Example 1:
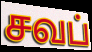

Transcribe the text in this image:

சவப்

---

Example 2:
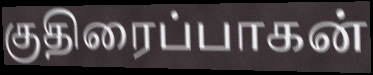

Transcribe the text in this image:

குதிரைப்பாகன்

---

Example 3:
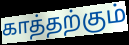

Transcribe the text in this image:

காத்தற்கும்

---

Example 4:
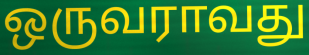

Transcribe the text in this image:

ஒருவராவது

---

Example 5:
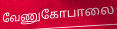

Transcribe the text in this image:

வேணுகோபாலை